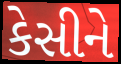
કેસીને